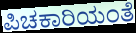
ಪಿಚಕಾರಿಯಂತೆ